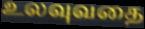
உலவுவதை